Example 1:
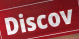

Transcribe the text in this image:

Discov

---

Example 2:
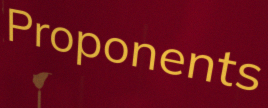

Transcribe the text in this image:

Proponents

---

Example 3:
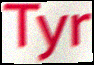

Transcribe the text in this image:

Tyr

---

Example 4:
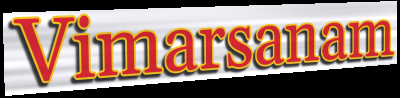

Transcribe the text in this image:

Vimarsanam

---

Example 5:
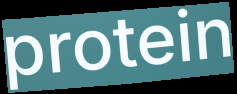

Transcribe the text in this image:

protein